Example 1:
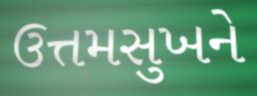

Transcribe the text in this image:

ઉત્તમસુખને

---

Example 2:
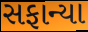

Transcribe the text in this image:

સફાન્યા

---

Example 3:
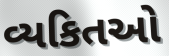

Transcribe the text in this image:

વ્યકિતઓ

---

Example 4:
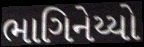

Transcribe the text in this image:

ભાગિનેય્યો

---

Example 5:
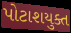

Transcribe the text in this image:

પોટાશયુક્ત